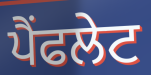
ਪੈਂਫਲੇਟ